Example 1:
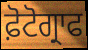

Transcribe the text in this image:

ਫ਼ੋਟੋਗ੍ਰਾਫ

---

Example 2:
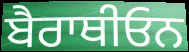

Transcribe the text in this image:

ਬੈਰਾਥੀਓਨ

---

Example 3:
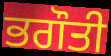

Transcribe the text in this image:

ਭਗੌਤੀ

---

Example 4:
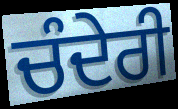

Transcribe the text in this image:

ਚੰਦੇਰੀ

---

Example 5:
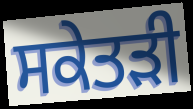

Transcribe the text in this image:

ਸਕੇਤੜੀ